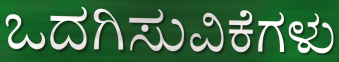
ಒದಗಿಸುವಿಕೆಗಳು